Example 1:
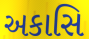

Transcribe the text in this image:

અકાસિ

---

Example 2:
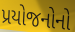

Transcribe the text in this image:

પ્રયોજનોનો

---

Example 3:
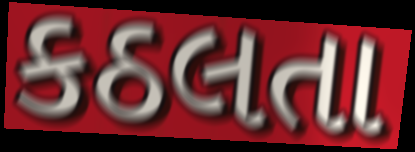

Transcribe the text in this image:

કઠલતા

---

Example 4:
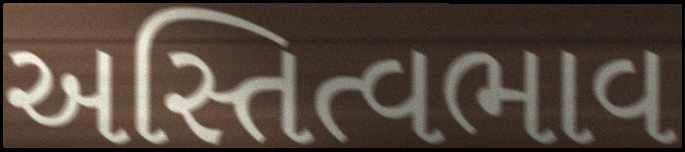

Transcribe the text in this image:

અસ્તિત્વભાવ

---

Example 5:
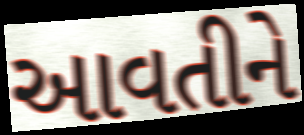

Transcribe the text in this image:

આવતીને